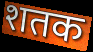
शतक